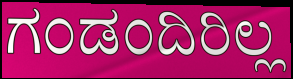
ಗಂಡಂದಿರಿಲ್ಲ